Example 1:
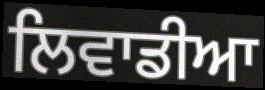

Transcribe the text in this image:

ਲਿਵਾਡੀਆ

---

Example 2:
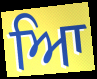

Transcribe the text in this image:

ਆਿ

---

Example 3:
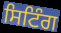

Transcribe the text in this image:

ਸਿਟਿੰਗ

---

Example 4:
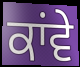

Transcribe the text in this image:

ਕਾਂਵੇ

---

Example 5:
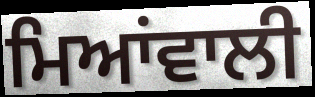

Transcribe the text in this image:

ਮਿਆਂਵਾਲੀ